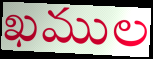
ఖముల